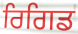
ਰਿਗਿਡ